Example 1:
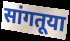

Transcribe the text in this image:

सांगतूया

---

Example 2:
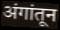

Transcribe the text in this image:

अंगांतून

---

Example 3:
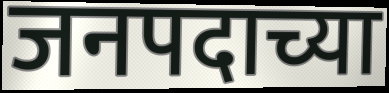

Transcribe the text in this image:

जनपदाच्या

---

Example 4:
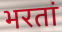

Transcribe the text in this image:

भरतां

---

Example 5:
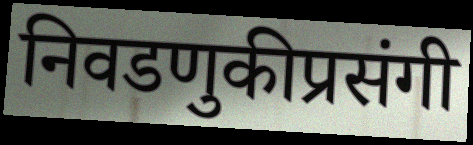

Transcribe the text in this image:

निवडणुकीप्रसंगी